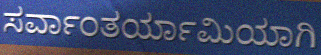
ಸರ್ವಾಂತರ್ಯಾಮಿಯಾಗಿ